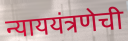
न्याययंत्रणेची